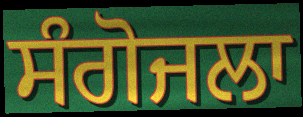
ਸੰਗੋਜਲਾ